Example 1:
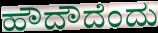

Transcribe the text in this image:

ಹೌದೌದೆಂದು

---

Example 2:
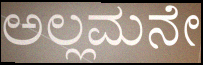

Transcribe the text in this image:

ಅಲ್ಲಮನೇ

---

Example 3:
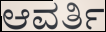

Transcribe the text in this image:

ಆವರ್ತಿ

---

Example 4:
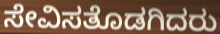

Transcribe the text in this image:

ಸೇವಿಸತೊಡಗಿದರು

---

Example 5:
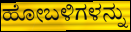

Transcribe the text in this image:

ಹೋಬಳಿಗಳನ್ನು